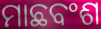
ମାଛବଂଶ